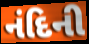
નંદિની